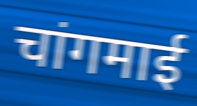
चांगमाई